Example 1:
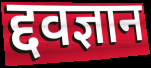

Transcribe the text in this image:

द्दवज्ञान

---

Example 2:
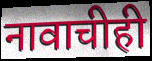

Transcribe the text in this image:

नावाचीही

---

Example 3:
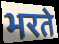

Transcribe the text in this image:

भरते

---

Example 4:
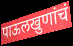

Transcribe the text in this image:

पाऊलखुणांचं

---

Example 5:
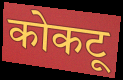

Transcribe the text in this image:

कोकटू